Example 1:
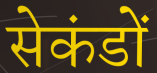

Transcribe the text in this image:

सेकंडों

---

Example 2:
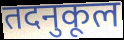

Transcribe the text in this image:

तदनुकूल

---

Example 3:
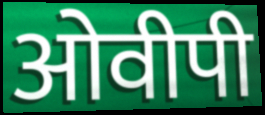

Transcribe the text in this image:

ओवीपी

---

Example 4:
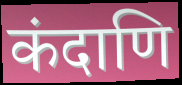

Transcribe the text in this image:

कंदाणि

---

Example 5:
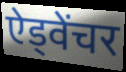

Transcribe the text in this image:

ऐड्वेंचर